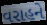
વરાહને